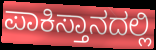
ಪಾಕಿಸ್ತಾನದಲ್ಲಿ